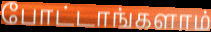
போட்டாங்களாம்